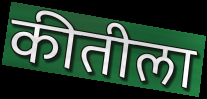
कीतीला